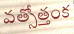
వత్సోత్తంక